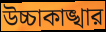
উচ্চাকাঙ্খার